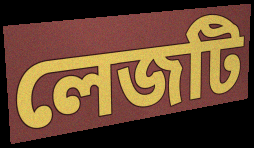
লেজটি